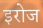
इरोज